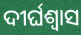
ଦୀର୍ଘଶ୍ୱାସ